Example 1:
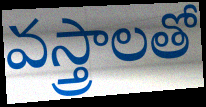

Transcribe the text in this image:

వస్త్రాలతో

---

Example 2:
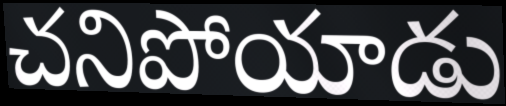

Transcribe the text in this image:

చనిపోయాడు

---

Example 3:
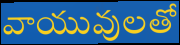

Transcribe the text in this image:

వాయువులతో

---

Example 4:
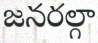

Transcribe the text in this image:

జనరల్గా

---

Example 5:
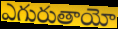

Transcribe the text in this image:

ఎగురుతాయో